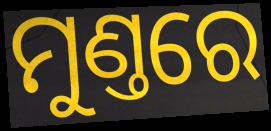
ମୁଣ୍ତରେ